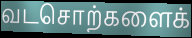
வடசொற்களைக்